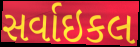
સર્વાઇકલ